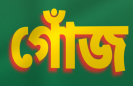
গোঁজ